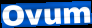
Ovum